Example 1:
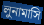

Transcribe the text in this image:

লুনামাসি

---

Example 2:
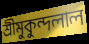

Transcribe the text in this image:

শ্রীমুকুন্দলাল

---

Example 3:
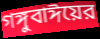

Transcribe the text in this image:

গঙ্গুবাঈয়ের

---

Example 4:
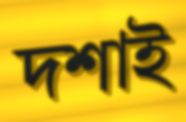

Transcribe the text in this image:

দশাই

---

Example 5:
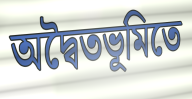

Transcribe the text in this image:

অদ্বৈতভূমিতে